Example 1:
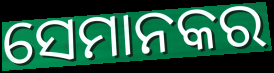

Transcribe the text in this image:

ସେମାନକର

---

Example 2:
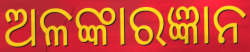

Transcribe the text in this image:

ଅଳଙ୍କାରଜ୍ଞାନ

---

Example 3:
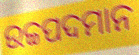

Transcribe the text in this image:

ଉଚ୍ଚପଦମାନ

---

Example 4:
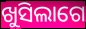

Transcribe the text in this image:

ଖୁସିଲାଗେ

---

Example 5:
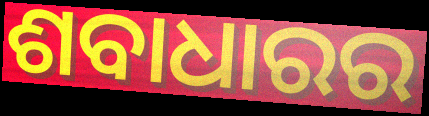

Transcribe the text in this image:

ଶବାଧାରର